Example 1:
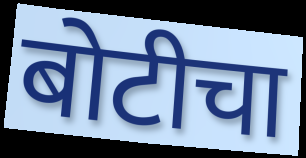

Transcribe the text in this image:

बोटीचा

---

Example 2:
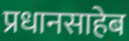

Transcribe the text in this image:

प्रधानसाहेब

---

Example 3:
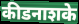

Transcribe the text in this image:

कीडनाशके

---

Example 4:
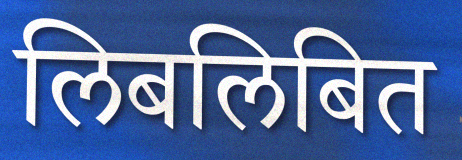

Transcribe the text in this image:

लिबलिबित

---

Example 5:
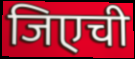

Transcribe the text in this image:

जिएची